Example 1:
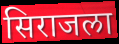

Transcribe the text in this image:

सिराजला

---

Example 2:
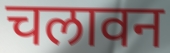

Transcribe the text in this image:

चलावन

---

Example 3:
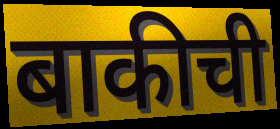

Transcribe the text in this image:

बाकीची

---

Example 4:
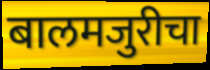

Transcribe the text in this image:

बालमजुरीचा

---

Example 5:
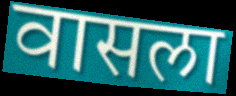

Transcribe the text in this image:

वासला